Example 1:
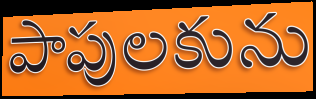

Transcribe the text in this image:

పాపులకును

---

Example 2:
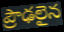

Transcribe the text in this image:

ప్రౌఢలైన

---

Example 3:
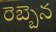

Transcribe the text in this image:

రెబ్బెన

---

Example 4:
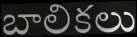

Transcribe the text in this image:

బాలికలు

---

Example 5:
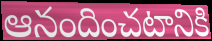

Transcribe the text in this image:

ఆనందించటానికి